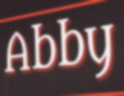
Abby